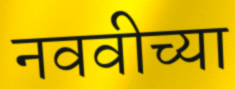
नववीच्या